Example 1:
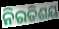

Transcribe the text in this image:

ନିରତିଶୟ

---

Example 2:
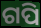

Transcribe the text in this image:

ଗପି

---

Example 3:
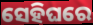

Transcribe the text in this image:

ସେହିଘରେ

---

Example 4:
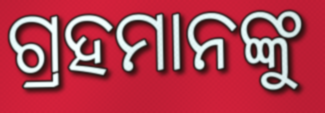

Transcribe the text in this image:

ଗ୍ରହମାନଙ୍କୁ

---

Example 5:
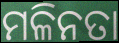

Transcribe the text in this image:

ମଳିନତା